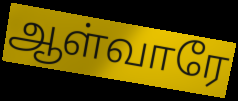
ஆள்வாரே